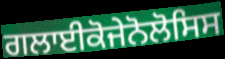
ਗਲਾਈਕੋਜੇਨੋਲੋਸਿਸ